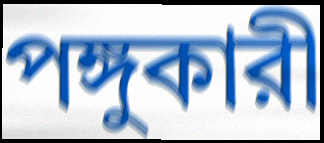
পঙ্গুকারী